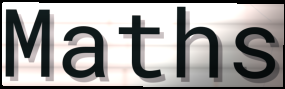
Maths